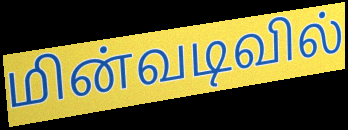
மின்வடிவில்